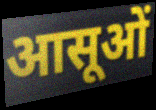
आसूओं